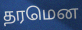
தரமென